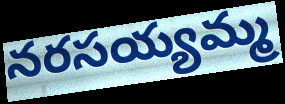
నరసయ్యమ్మ